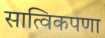
सात्विकपणा